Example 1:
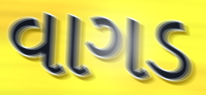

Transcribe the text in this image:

વાગડ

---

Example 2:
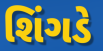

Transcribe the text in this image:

શિંગડે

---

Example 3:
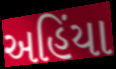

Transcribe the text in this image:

અહિંયા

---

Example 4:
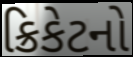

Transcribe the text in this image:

ક્રિકેટનો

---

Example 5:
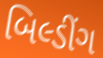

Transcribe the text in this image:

બિલ્ડીંગ